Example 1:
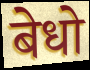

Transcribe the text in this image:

बेधो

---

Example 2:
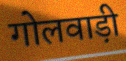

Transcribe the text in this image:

गोलवाड़ी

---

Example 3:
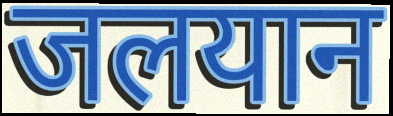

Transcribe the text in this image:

जलयान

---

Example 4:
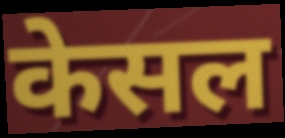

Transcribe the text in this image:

केसल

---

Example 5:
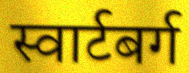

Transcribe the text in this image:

स्वार्टबर्ग